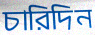
চারিদিন